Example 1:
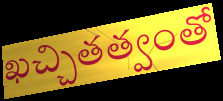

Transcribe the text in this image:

ఖచ్చితత్వంతో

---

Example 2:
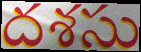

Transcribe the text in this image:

దశసు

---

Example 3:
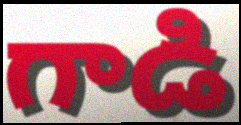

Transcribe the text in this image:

గాడి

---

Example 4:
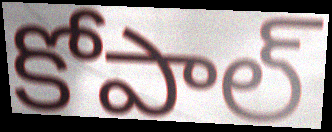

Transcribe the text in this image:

కోపాల్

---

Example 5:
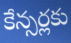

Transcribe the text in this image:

కేన్సర్లకు